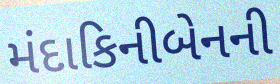
મંદાકિનીબેનની